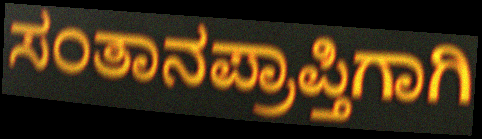
ಸಂತಾನಪ್ರಾಪ್ತಿಗಾಗಿ